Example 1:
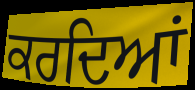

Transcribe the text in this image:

ਕਰਦਿਆਂ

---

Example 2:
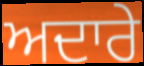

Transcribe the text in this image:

ਅਦਾਰੇ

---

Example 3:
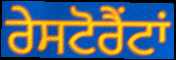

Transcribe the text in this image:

ਰੇਸਟੋਰੈਂਟਾਂ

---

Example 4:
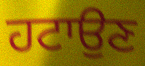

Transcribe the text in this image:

ਹਟਾਉਣ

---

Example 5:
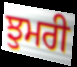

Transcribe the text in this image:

ਝੁਮਰੀ